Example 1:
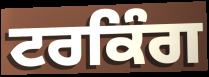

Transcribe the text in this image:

ਟਰਕਿੰਗ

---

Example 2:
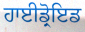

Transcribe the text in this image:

ਹਾਈਡ੍ਰੋਇਡ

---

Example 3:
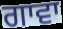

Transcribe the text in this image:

ਗਾਵਾ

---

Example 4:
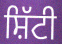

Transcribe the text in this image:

ਸ਼ਿੱਟੀ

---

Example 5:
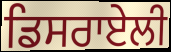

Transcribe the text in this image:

ਡਿਸਰਾਏਲੀ